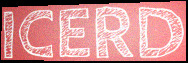
ICERD